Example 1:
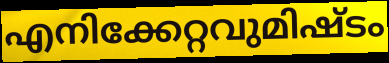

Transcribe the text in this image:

എനിക്കേറ്റവുമിഷ്ടം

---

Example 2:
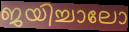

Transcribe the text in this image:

ജയിച്ചാലോ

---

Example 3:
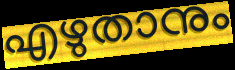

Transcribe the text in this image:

എഴുതാനും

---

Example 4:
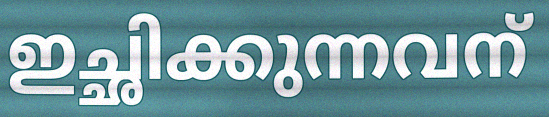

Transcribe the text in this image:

ഇച്ഛിക്കുന്നവന്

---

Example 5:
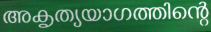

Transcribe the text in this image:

അകൃത്യയാഗത്തിന്റെ